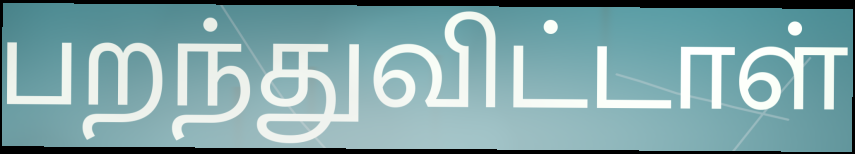
பறந்துவிட்டாள்